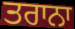
ਤਰਾਨਾ